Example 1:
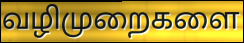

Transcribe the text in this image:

வழிமுறைகளை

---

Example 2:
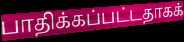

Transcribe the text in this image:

பாதிக்கப்பட்டதாகக்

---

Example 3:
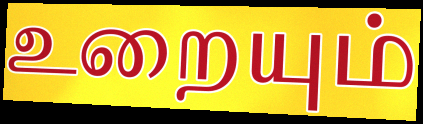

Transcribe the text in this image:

உறையும்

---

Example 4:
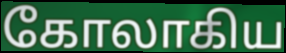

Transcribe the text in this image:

கோலாகிய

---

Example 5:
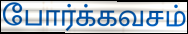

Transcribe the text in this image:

போர்க்கவசம்